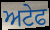
ਅਟੇਫ